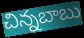
చిన్నబాబు